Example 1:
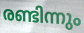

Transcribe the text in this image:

രണ്ടിന്നും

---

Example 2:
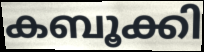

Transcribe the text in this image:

കബൂക്കി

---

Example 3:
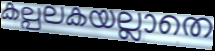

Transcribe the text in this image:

കല്പലകയല്ലാതെ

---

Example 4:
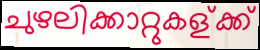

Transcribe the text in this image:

ചുഴലിക്കാറ്റുകള്ക്ക്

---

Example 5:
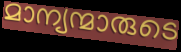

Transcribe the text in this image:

മാന്യന്മാരുടെ